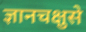
ज्ञानचक्षुसे